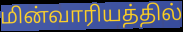
மின்வாரியத்தில்